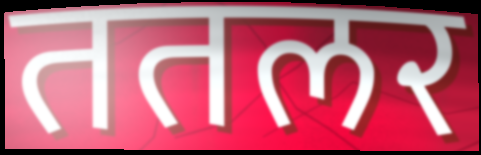
ततलर